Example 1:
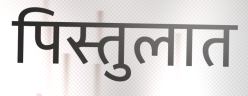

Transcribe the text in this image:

पिस्तुलात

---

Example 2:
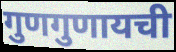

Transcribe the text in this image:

गुणगुणायची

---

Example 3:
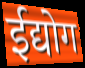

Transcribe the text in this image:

ईद्योग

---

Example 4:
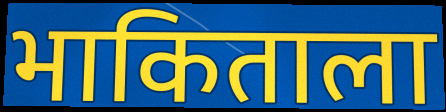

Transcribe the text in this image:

भाकिताला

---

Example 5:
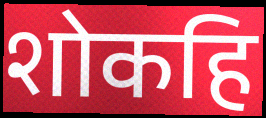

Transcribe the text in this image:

शोकहि